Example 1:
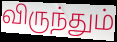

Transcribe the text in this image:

விருந்தும்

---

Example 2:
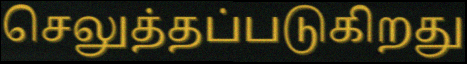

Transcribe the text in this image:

செலுத்தப்படுகிறது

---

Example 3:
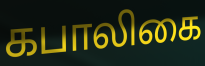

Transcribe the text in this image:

கபாலிகை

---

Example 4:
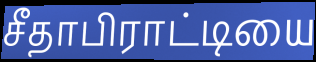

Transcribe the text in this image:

சீதாபிராட்டியை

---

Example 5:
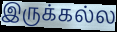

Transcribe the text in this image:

இருக்கல்ல